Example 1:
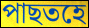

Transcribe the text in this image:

পাছতহে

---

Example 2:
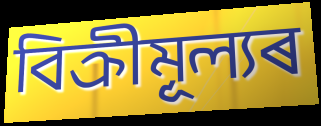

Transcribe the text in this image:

বিক্ৰীমূল্যৰ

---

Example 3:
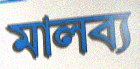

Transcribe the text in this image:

মালব্য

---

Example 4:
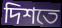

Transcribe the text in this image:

দিশতে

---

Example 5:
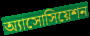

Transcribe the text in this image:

অ্যাসোসিয়েশন